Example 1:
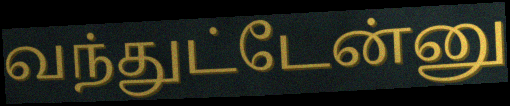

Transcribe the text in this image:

வந்துட்டேன்னு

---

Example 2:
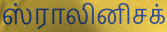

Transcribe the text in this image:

ஸ்ராலினிசக்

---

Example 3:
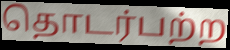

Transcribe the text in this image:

தொடர்பற்ற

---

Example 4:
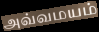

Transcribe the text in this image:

அவ்வமயம்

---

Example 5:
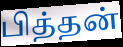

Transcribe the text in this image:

பித்தன்